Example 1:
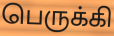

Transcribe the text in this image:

பெருக்கி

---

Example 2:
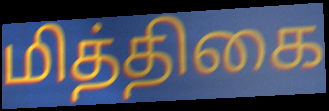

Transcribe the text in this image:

மித்திகை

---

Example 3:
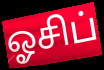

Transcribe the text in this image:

ஓசிப்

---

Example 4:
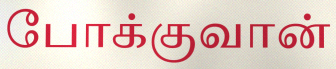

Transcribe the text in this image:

போக்குவான்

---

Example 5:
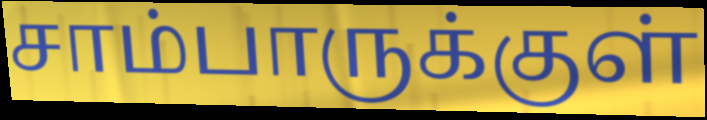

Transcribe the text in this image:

சாம்பாருக்குள்